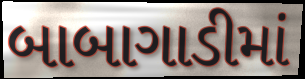
બાબાગાડીમાં